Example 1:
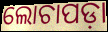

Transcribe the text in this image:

ଲୋଚାପଡ଼ା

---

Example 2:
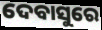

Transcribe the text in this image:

ଦେବାସୁରେ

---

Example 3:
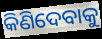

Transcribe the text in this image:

କିଣିଦେବାକୁ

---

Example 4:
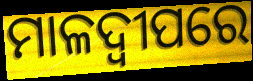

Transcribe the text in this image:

ମାଳଦ୍ବୀପରେ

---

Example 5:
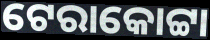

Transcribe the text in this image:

ଟେରାକୋଟ୍ଟା